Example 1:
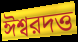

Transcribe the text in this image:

ঈশ্বরদত্ত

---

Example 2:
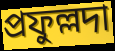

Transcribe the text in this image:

প্রফুল্লদা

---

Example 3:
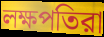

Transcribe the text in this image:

লক্ষপতিরা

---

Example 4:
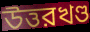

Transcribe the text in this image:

উত্তরখণ্ড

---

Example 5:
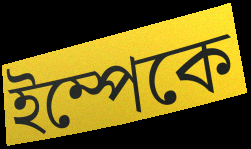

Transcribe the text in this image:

ইম্পেকে